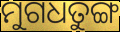
ମୁଗଧତୁଙ୍ଗ